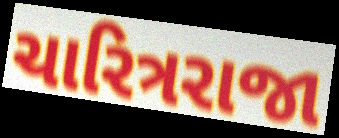
ચારિત્રરાજા